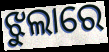
ଝୁଲାରେ